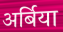
अर्बिया